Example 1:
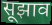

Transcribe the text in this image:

सूझाव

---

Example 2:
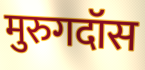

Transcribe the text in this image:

मुरुगदॉस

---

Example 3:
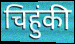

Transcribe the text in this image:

चिहुंकी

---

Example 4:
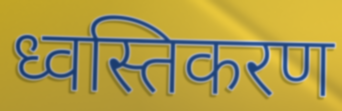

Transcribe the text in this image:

ध्वस्तिकरण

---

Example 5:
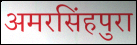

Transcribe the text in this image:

अमरसिंहपुरा